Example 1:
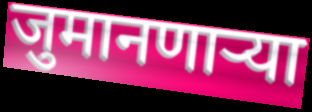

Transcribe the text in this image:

जुमानणार्‍या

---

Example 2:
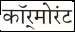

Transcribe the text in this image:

कॉर्मोरंट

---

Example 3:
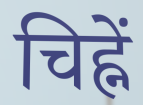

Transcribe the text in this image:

चिह्नें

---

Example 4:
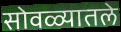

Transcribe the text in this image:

सोवळ्यातले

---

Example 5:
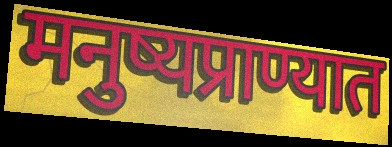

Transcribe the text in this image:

मनुष्यप्राण्यात